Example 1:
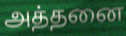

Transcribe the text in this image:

அத்தனை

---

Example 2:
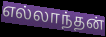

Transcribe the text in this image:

எல்லாந்தன்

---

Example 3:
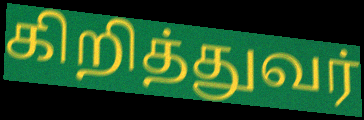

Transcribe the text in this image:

கிறித்துவர்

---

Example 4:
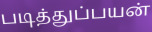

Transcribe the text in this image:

படித்துப்பயன்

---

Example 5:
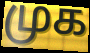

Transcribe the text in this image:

முக